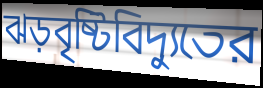
ঝড়বৃষ্টিবিদ্যুতের